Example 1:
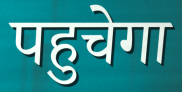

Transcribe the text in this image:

पहुचेगा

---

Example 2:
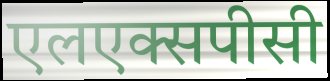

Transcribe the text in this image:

एलएक्सपीसी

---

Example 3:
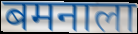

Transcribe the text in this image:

बमनाला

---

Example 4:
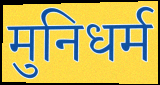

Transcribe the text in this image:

मुनिधर्म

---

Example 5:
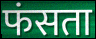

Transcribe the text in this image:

फंसता